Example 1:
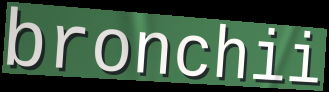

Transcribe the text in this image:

bronchii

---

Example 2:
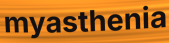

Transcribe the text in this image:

myasthenia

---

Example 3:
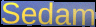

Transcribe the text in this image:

Sedam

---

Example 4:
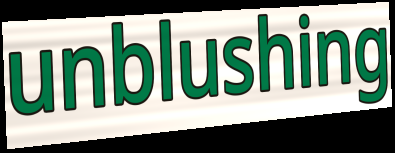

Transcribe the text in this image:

unblushing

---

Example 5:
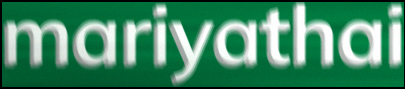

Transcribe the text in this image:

mariyathai